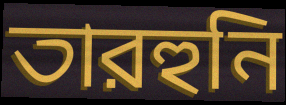
তারহুনি